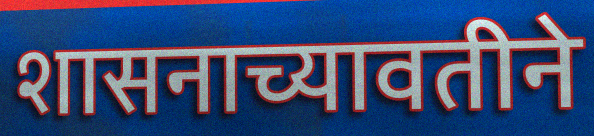
शासनाच्यावतीने